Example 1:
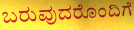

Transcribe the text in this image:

ಬರುವುದರೊಂದಿಗೆ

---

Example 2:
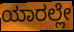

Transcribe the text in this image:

ಯಾರಲ್ಲೇ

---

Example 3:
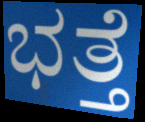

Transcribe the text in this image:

ಭತ್ತೆ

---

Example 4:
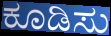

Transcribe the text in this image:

ಕೂಡಿಸು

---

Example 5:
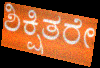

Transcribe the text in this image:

ಶಿಕ್ಷಿತರೇ